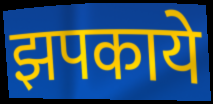
झपकाये